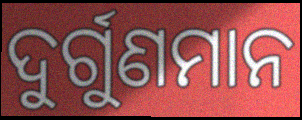
ଦୁର୍ଗୁଣମାନ